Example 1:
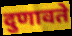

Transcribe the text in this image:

दुणावते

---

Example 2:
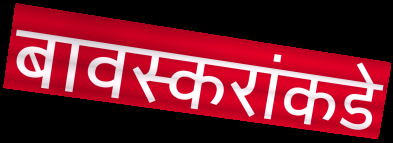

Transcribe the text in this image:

बावस्करांकडे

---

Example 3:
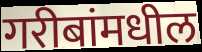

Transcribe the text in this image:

गरीबांमधील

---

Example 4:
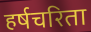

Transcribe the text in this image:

हर्षचरिता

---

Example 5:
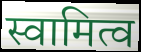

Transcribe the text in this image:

स्वामित्व